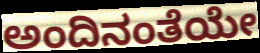
ಅಂದಿನಂತೆಯೇ